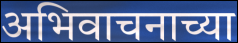
अभिवाचनाच्या